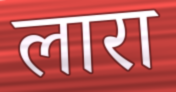
लारा